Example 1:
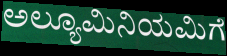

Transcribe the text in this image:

ಅಲ್ಯೂಮಿನಿಯಮಿಗೆ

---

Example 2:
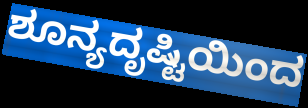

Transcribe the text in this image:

ಶೂನ್ಯದೃಷ್ಟಿಯಿಂದ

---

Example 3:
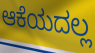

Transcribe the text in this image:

ಆಕೆಯದಲ್ಲ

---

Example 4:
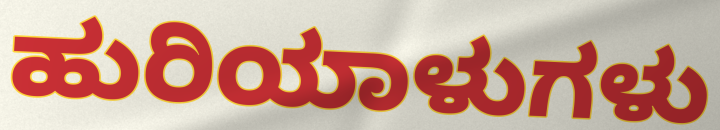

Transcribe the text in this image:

ಹುರಿಯಾಳುಗಳು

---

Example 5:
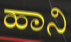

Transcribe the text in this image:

ಹಾನಿ